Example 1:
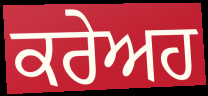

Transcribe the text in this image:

ਕਰੇਅਹ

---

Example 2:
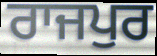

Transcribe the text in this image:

ਰਾਜਪੁਰ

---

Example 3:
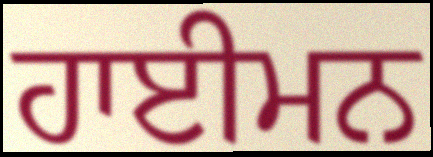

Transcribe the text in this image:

ਹਾਈਮਨ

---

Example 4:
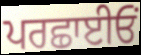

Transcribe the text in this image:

ਪਰਛਾਈਓਂ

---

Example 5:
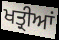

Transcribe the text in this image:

ਖਤ੍ਰੀਆਂ